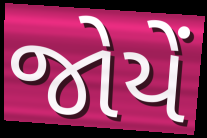
જોયેં